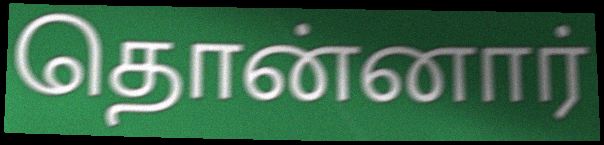
தொன்னார்